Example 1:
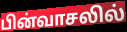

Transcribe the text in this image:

பின்வாசலில்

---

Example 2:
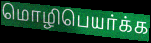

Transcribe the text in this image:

மொழிபெயர்க்க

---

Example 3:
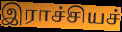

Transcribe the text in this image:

இராச்சியச்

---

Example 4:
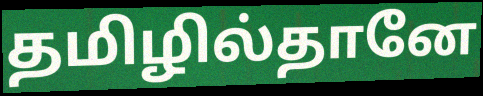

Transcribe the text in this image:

தமிழில்தானே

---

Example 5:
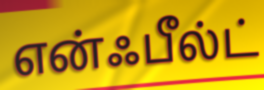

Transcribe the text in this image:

என்ஃபீல்ட்